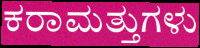
ಕರಾಮತ್ತುಗಳು